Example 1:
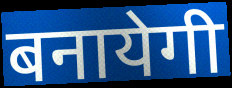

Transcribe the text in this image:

बनायेगी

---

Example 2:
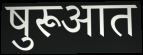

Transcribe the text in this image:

षुरूआत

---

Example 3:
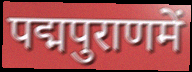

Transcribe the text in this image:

पद्मपुराणमें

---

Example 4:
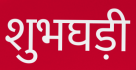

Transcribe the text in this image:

शुभघड़ी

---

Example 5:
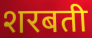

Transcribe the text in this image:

शरबती